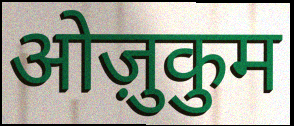
ओज़ुकुम